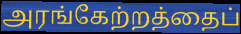
அரங்கேற்றத்தைப்